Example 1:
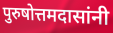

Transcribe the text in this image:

पुरुषोत्तमदासांनी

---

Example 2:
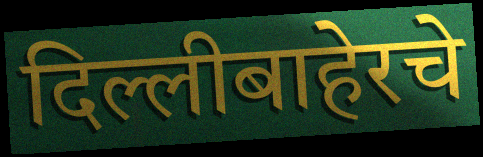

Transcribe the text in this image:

दिल्लीबाहेरचे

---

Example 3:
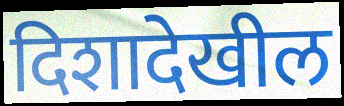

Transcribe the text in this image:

दिशादेखील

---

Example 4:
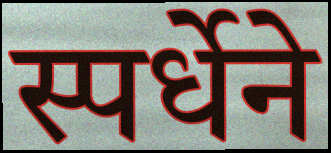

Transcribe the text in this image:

स्पर्धेने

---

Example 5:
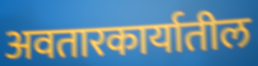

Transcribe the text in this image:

अवतारकार्यातील